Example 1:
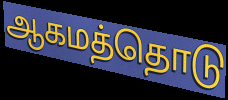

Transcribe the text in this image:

ஆகமத்தொடு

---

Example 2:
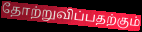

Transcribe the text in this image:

தோற்றுவிப்பதற்கும்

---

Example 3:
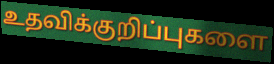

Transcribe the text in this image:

உதவிக்குறிப்புகளை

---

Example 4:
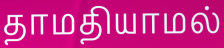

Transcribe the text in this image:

தாமதியாமல்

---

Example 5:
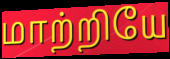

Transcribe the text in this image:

மாற்றியே